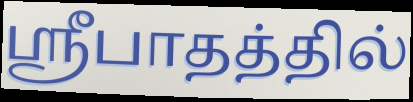
ஸ்ரீபாதத்தில்